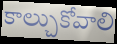
కాల్చుకోవాలి